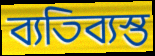
ব্যতিব্যস্ত